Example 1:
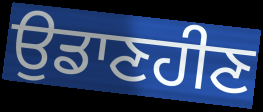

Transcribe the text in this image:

ਉਡਾਣਹੀਣ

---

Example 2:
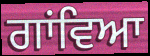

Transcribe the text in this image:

ਗਾਂਵਿਆ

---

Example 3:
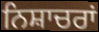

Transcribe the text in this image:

ਨਿਸ਼ਾਚਰਾਂ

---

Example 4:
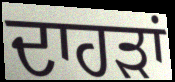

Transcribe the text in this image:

ਦਾਹੜਾਂ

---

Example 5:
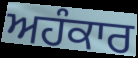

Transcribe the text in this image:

ਅਹੰਕਾਰ